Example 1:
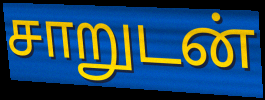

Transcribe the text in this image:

சாறுடன்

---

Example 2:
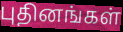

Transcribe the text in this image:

புதினங்கள்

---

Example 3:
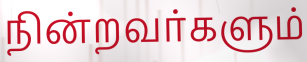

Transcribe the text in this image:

நின்றவர்களும்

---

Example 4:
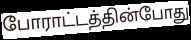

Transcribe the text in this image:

போராட்டத்தின்போது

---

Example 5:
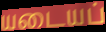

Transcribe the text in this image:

யடையப்